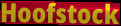
Hoofstock